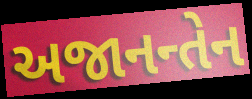
અજાનન્તેન